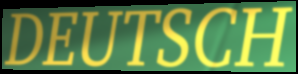
DEUTSCH